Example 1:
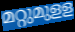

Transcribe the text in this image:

മറ്റുമുളള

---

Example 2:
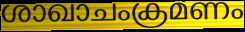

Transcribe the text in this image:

ശാഖാചംക്രമണം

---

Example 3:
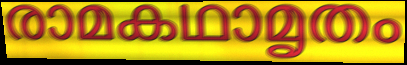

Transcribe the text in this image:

രാമകഥാമൃതം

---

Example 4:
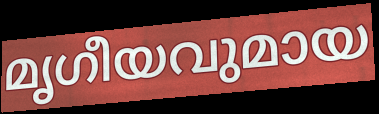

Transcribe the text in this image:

മൃഗീയവുമായ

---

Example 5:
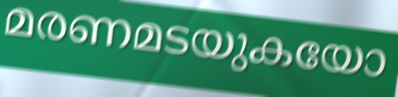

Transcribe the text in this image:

മരണമടയുകയോ